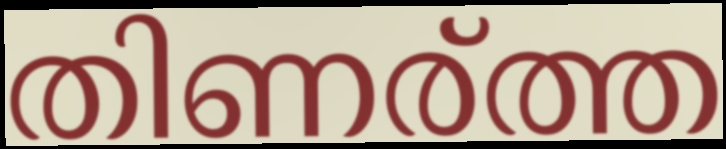
തിണര്ത്ത